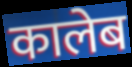
कालेब